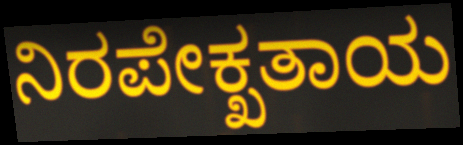
ನಿರಪೇಕ್ಖತಾಯ